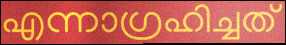
എന്നാഗ്രഹിച്ചത്